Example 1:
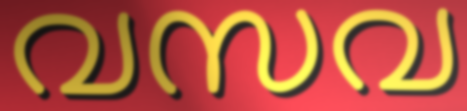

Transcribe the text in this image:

വസവ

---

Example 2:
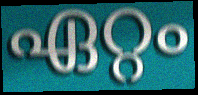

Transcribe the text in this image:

ഏറ്റം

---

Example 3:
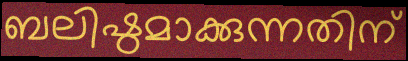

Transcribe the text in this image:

ബലിഷ്ഠമാക്കുന്നതിന്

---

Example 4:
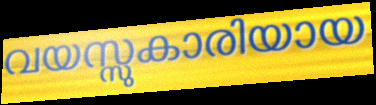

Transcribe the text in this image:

വയസ്സുകാരിയായ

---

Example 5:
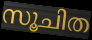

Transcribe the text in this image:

സൂചിത